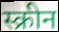
स्क्रीन